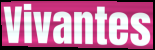
Vivantes